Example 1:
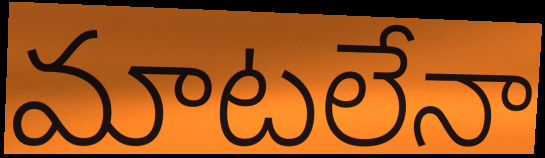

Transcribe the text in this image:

మాటలేనా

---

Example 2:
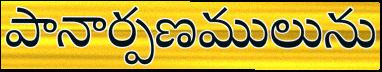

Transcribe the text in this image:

పానార్పణములును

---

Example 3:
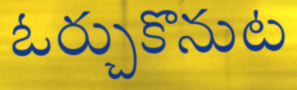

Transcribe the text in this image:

ఓర్చుకొనుట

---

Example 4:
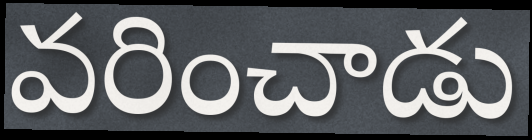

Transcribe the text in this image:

వరించాడు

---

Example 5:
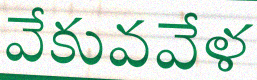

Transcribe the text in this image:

వేకువవేళ